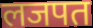
लजपत